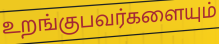
உறங்குபவர்களையும்